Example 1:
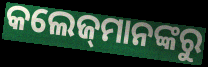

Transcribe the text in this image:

କଲେଜ୍‌ମାନଙ୍କରୁ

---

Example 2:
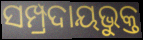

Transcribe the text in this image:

ସମ୍ପ୍ରଦାୟଭୁକ୍ତ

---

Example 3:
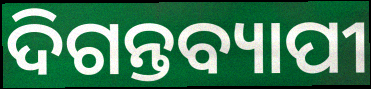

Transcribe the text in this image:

ଦିଗନ୍ତବ୍ୟାପୀ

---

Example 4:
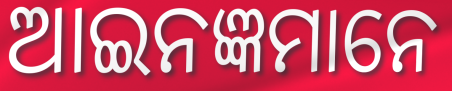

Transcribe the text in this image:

ଆଇନଜ୍ଞମାନେ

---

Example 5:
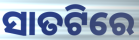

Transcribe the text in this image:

ସାତଟିରେ